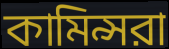
কামিন্সরা